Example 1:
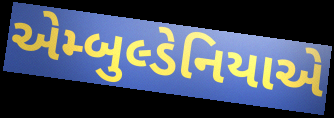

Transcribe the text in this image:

એમ્બુલ્ડેનિયાએ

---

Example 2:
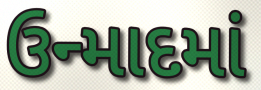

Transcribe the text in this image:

ઉન્માદમાં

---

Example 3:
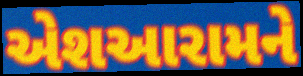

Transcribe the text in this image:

એશઆરામને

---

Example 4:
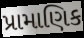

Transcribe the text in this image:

પ્રામાણિક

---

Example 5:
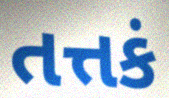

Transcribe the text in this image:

તત્તકં